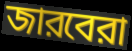
জারবেরা